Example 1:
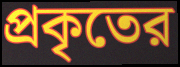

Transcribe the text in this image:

প্রকৃতের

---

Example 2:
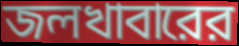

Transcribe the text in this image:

জলখাবারের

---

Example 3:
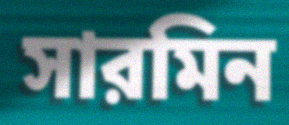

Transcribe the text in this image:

সারমিন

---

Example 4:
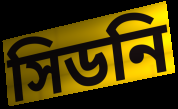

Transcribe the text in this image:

সিডনি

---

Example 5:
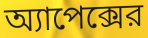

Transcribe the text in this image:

অ্যাপেক্সের